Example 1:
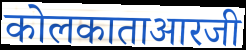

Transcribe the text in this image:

कोलकाताआरजी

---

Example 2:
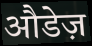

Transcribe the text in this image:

औडेज़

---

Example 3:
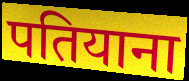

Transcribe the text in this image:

पतियाना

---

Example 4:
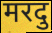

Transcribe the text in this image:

मरदु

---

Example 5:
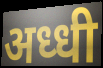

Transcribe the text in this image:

अध्धी